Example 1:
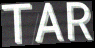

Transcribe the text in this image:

TAR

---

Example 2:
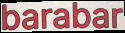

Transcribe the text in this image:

barabar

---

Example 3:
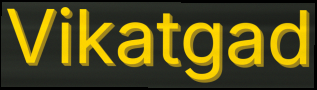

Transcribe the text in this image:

Vikatgad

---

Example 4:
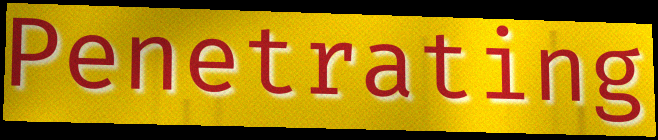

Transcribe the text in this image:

Penetrating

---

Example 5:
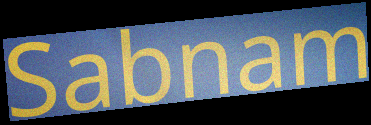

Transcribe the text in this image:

Sabnam